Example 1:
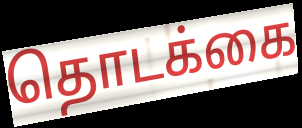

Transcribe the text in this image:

தொடக்கை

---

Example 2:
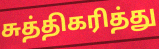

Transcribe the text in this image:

சுத்திகரித்து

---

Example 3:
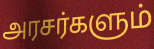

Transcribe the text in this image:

அரசர்களும்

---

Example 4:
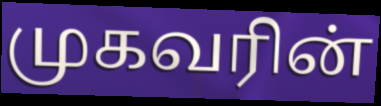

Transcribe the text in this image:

முகவரின்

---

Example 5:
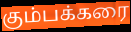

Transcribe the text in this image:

கும்பக்கரை